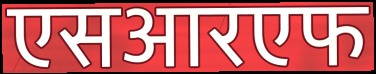
एसआरएफ